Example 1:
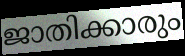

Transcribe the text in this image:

ജാതിക്കാരും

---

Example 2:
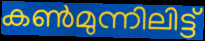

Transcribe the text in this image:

കൺമുന്നിലിട്ട്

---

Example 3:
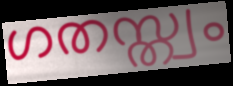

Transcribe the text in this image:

ഗതസ്ത്വം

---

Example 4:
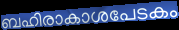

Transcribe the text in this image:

ബഹിരാകാശപേടകം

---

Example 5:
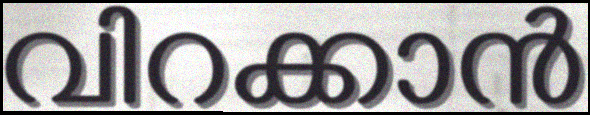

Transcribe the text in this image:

വിറക്കാൻ